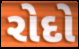
રોદો